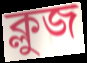
ক্লুজ